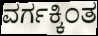
ವರ್ಗಕ್ಕಿಂತ